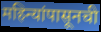
महिन्यांपासूनची